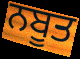
ਨਬੂਤ